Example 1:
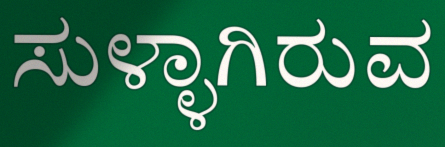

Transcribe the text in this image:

ಸುಳ್ಳಾಗಿರುವ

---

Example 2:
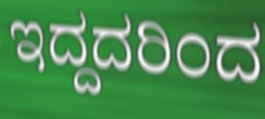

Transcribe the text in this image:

ಇದ್ದದರಿಂದ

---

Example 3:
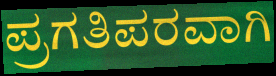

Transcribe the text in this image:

ಪ್ರಗತಿಪರವಾಗಿ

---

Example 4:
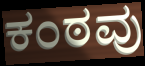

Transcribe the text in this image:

ಕಂಠವು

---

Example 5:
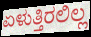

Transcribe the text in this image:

ಏಳುತ್ತಿರಲಿಲ್ಲ